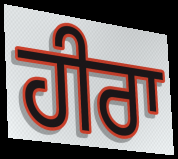
ਹੀਰਾ